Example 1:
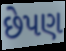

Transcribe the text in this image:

છેપણ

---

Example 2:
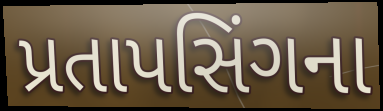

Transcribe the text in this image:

પ્રતાપસિંગના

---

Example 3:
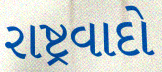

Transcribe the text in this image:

રાષ્ટ્રવાદો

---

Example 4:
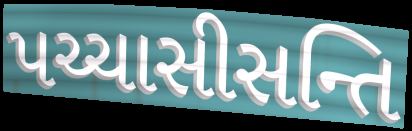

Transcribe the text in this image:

પચ્ચાસીસન્તિ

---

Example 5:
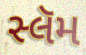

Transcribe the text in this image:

સ્લૅમ